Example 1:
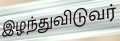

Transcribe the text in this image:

இழந்துவிடுவர்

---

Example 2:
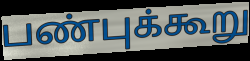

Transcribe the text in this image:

பண்புக்கூறு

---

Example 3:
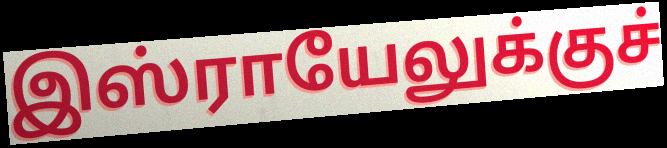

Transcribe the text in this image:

இஸ்ராயேலுக்குச்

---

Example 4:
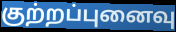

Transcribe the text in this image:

குற்றப்புனைவு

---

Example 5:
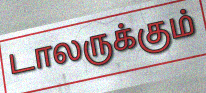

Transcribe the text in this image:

டாலருக்கும்